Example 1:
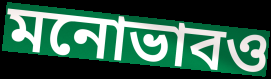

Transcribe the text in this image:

মনোভাবও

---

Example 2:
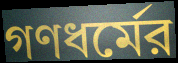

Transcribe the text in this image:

গণধর্মের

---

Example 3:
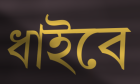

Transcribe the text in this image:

ধাইবে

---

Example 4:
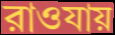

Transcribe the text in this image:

রাওযায়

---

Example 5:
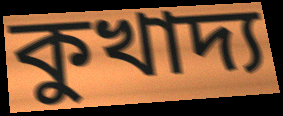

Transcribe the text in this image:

কুখাদ্য